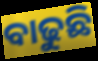
ବାଢୁଛି